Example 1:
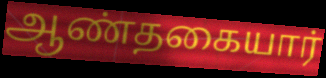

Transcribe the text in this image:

ஆண்தகையார்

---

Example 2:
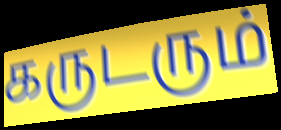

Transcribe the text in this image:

கருடரும்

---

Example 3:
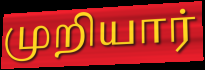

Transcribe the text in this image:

முறியார்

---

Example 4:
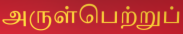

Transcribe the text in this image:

அருள்பெற்றுப்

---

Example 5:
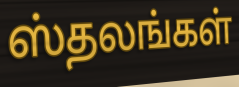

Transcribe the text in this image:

ஸ்தலங்கள்